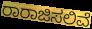
ರಾರಾಜಿಸಲಿವೆ